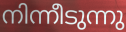
നിന്നീടുന്നു